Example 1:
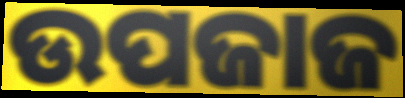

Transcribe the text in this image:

ଉପଜାଜ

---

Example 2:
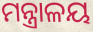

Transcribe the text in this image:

ମନ୍ତ୍ରାଳୟ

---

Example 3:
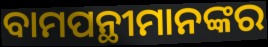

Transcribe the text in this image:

ବାମପନ୍ଥୀମାନଙ୍କର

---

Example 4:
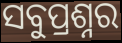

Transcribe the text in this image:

ସବୁପ୍ରଶ୍ନର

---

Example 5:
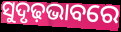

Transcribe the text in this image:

ସୁଦୃଢ଼ଭାବରେ